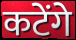
कटेंगे